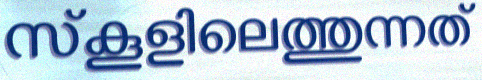
സ്‌കൂളിലെത്തുന്നത്